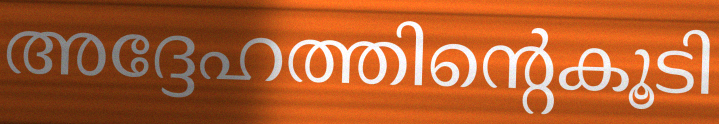
അദ്ദേഹത്തിന്റെകൂടി